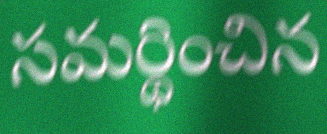
సమర్థించిన